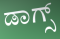
ಡಾಗ್ಸ್